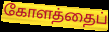
கோளத்தைப்